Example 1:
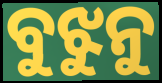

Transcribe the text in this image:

ବୁଝୁନୁ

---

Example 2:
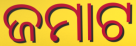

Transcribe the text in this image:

ଜମାଟ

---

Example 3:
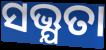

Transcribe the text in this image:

ସଭ୍ଯତା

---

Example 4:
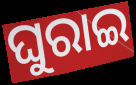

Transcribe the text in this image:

ଘୁରାଇ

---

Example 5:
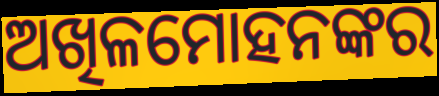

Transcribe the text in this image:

ଅଖିଳମୋହନଙ୍କର